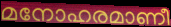
മനോഹരമാണീ